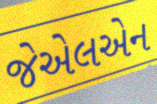
જેએલએન